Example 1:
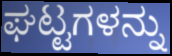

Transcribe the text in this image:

ಘಟ್ಟಗಳನ್ನು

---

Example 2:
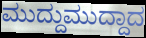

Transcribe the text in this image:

ಮುದ್ದುಮುದ್ದಾದ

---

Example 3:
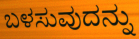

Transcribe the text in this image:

ಬಳಸುವುದನ್ನು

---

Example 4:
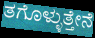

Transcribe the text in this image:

ತಗೊಳ್ಳುತ್ತೇನೆ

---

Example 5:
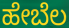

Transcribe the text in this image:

ಹೇಬೆಲ